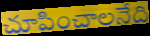
చూపించాలనేది